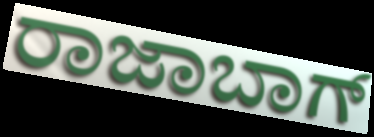
ರಾಜಾಬಾಗ್